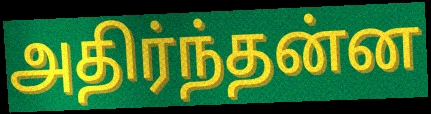
அதிர்ந்தன்ன